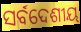
ସର୍ବଦେଶୀୟ